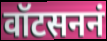
वॉटसननं